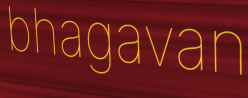
bhagavan